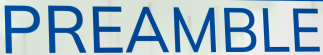
PREAMBLE